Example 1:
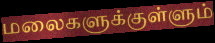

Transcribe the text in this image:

மலைகளுக்குள்ளும்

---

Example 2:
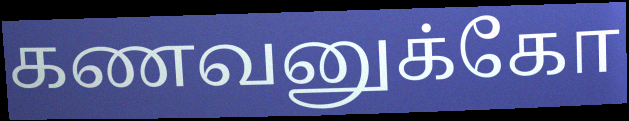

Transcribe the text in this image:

கணவனுக்கோ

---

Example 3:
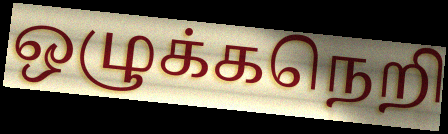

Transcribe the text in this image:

ஒழுக்கநெறி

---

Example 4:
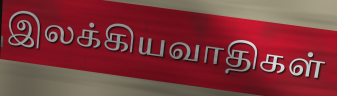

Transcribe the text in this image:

இலக்கியவாதிகள்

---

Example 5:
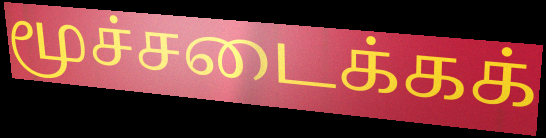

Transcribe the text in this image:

மூச்சடைக்கக்